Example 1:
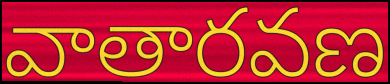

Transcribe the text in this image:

వాతారవణ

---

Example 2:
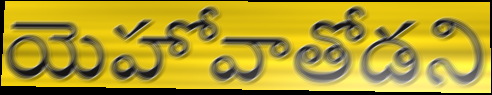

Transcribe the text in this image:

యెహోవాతోడని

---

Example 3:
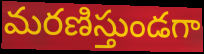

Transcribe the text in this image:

మరణిస్తుండగా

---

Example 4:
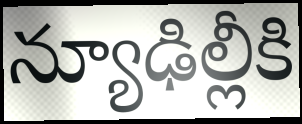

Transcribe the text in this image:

న్యూఢిల్లీకి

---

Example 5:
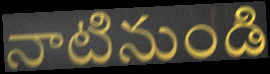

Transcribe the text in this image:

నాటినుండి